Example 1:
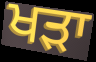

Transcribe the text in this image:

ਖਡ਼ਾ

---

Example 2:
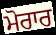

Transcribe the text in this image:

ਮੋਰਾਰ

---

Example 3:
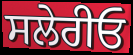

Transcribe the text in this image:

ਸਲੇਰੀਓ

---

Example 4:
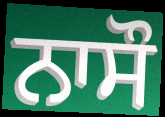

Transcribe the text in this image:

ਨਾਸੌ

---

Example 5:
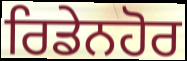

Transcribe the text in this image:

ਰਿਡੇਨਹੋਰ